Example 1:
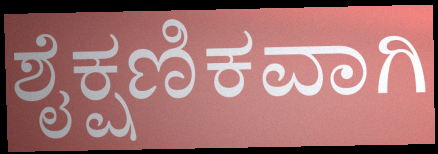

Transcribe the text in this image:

ಶೈಕ್ಷಣಿಕವಾಗಿ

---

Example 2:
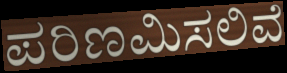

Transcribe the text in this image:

ಪರಿಣಮಿಸಲಿವೆ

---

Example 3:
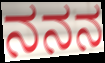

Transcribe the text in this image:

ನನನ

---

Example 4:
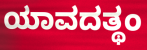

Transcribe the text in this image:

ಯಾವದತ್ಥಂ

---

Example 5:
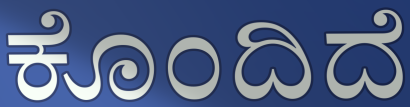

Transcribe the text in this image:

ಕೊಂದಿದೆ